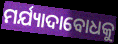
ମର୍ଯ୍ୟାଦାବୋଧକୁ